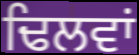
ਢਿਲਵਾਂ